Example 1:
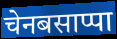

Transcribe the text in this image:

चेनबसाप्पा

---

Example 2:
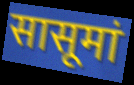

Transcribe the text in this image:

सासूमां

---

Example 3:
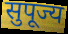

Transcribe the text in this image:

सुपूज्य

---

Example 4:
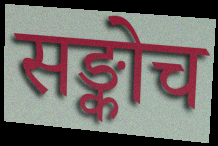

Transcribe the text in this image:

सङ्कोच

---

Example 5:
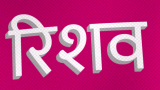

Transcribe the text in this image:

रिशव